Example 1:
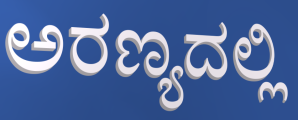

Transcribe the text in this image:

ಅರಣ್ಯದಲ್ಲಿ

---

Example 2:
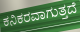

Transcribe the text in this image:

ಕನಿಕರವಾಗುತ್ತದೆ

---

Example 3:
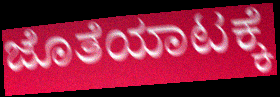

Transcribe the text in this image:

ಜೊತೆಯಾಟಕ್ಕೆ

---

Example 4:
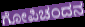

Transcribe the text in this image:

ಗೋಪಿಚಂದನ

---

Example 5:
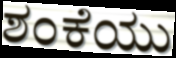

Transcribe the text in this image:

ಶಂಕೆಯು